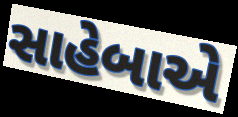
સાહેબાએ